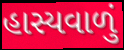
હાસ્યવાળું